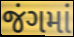
જંગમાં